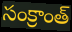
సంక్రాంత్